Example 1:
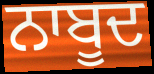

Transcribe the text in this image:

ਨਾਬੂਦ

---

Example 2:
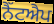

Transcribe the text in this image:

ਨੈੱਟਐਪ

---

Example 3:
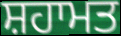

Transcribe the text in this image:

ਸ਼ਹਾਮਤ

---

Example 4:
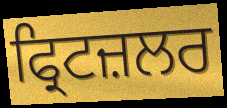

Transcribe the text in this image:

ਫ੍ਰਿਟਜ਼ਲਰ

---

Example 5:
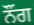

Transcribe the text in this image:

ਨੌਂਗ